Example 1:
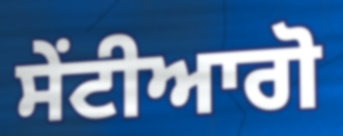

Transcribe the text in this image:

ਸੇਂਟੀਆਗੋ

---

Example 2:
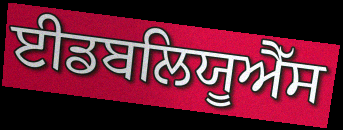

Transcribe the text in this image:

ਈਡਬਲਿਯੂਐੱਸ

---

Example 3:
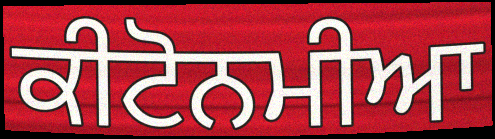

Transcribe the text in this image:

ਕੀਟੋਨਮੀਆ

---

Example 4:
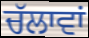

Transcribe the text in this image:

ਚੱਲਾਵਾਂ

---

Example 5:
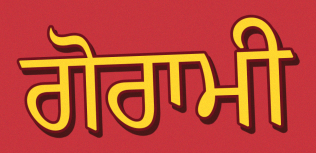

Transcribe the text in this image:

ਗੋਰਾਮੀ